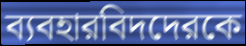
ব্যবহারবিদদেরকে